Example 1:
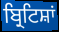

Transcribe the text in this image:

ਬ੍ਰਿਟਿਸ਼ਾਂ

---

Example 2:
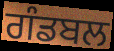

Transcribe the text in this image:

ਗੰਡਬਲ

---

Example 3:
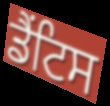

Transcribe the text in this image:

ਡੈਂਟਿਸ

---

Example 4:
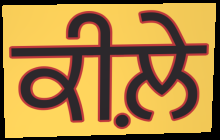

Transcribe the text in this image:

ਕੀਲ਼ੇ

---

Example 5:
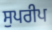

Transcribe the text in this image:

ਸੁਪਰੀਪ